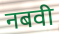
नबवी